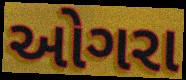
ઓગરા